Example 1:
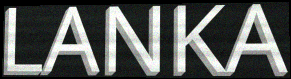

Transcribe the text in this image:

LANKA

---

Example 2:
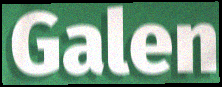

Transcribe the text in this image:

Galen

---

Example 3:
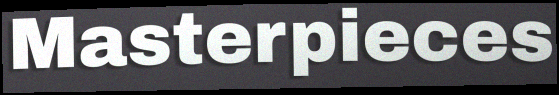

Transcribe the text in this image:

Masterpieces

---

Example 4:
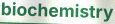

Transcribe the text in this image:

biochemistry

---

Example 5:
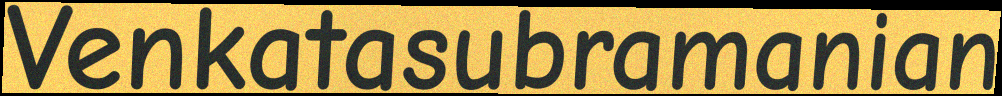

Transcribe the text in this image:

Venkatasubramanian